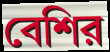
বেশির